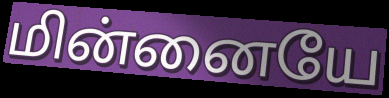
மின்னையே